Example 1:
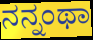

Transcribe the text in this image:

ನನ್ನಂಥಾ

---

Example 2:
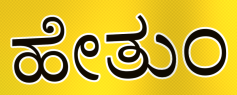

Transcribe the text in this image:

ಹೇತುಂ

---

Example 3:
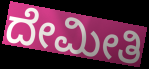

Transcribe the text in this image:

ದೇಮೀತಿ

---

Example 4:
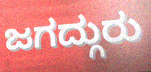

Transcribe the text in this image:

ಜಗದ್ಗುರು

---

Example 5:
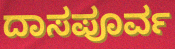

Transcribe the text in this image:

ದಾಸಪೂರ್ವ